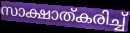
സാക്ഷാത്കരിച്ച്